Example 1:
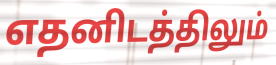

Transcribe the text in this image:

எதனிடத்திலும்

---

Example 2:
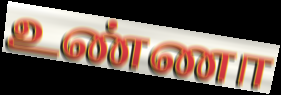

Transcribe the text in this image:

உண்ணா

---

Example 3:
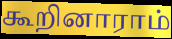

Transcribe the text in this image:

கூறினாராம்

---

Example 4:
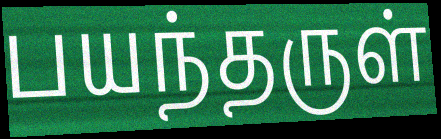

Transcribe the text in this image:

பயந்தருள்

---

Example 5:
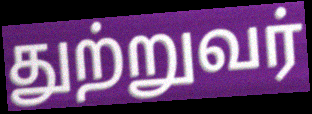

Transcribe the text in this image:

துற்றுவர்